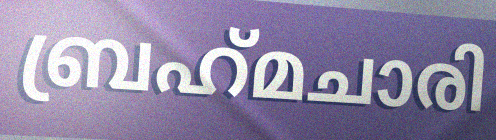
ബ്രഹ്‌മചാരി